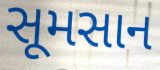
સૂમસાન